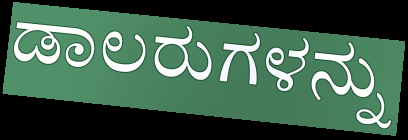
ಡಾಲರುಗಳನ್ನು